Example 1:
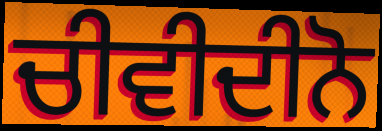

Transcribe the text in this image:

ਚੀਵੀਦੀਨੋ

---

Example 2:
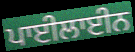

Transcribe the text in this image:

ਪਾਈਲਾਈਨ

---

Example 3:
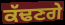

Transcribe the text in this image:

ਕੱਢਣਗੇ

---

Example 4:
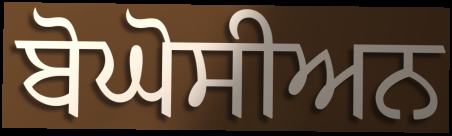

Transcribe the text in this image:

ਬੋਘੋਸੀਅਨ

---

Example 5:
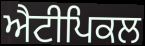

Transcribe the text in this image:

ਐਟੀਪਿਕਲ